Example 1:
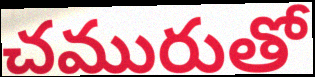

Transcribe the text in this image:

చమురుతో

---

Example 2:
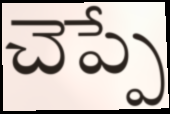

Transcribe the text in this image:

చెప్పే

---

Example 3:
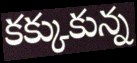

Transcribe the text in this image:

కక్కుకున్న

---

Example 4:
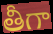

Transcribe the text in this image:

తీగా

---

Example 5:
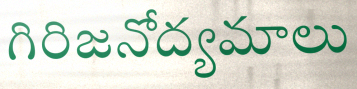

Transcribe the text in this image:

గిరిజనోద్యమాలు